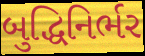
બુદ્ધિનિર્ભર